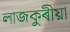
লাজকুৰীয়া